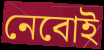
নেবোই